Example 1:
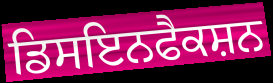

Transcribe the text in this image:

ਡਿਸਇਨਫੈਕਸ਼ਨ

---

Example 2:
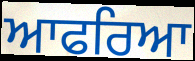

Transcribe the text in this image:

ਆਫਰਿਆ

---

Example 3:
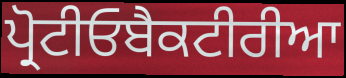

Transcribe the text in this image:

ਪ੍ਰੋਟੀਓਬੈਕਟੀਰੀਆ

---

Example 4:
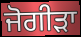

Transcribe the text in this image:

ਜੋਗੀੜਾ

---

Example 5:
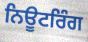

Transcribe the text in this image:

ਨਿਊਟਰਿੰਗ